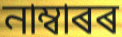
নাম্বাৰৰ